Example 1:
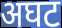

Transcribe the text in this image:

अघट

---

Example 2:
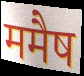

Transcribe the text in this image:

ममैष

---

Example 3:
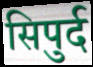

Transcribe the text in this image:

सिपुर्द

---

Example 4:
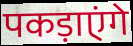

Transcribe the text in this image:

पकड़ाएंगे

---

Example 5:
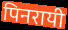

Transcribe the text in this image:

पिनरायी